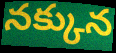
నక్కున